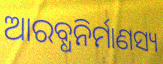
ଆରବ୍ଧନିର୍ମାଣସ୍ୟ